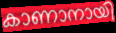
കാണാനായി